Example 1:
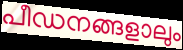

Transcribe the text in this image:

പീഡനങ്ങളാലും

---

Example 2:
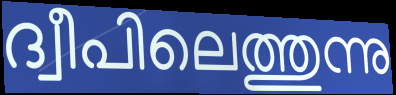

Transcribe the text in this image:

ദ്വീപിലെത്തുന്നു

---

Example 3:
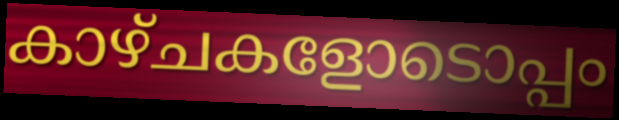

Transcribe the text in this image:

കാഴ്ചകളോടൊപ്പം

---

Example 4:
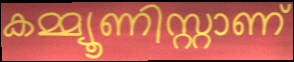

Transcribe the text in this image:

കമ്മ്യൂണിസ്റ്റാണ്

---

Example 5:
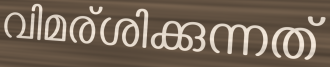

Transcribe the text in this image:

വിമര്ശിക്കുന്നത്